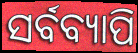
ସର୍ବବ୍ୟାପି